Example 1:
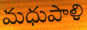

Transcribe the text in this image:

మధుపాళి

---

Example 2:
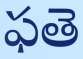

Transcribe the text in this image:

ఫతె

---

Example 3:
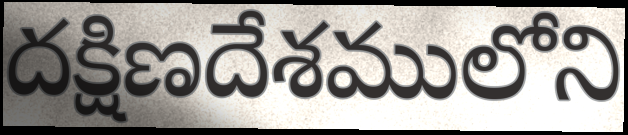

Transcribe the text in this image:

దక్షిణదేశములోని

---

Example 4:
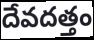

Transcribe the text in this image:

దేవదత్తం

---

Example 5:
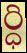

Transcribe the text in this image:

ర్ధి